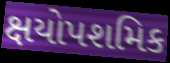
ક્ષયોપશમિક